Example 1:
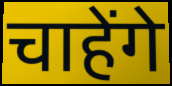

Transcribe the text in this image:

चाहेंगे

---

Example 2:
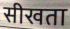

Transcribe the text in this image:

सीखता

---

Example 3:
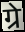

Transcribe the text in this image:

ग्रे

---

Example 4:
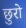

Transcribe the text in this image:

छुरो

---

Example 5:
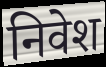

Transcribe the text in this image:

निवेश